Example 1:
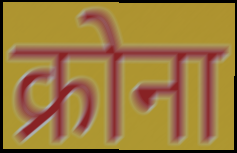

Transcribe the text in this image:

क्रोना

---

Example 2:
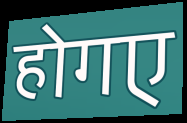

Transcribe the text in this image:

होगए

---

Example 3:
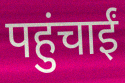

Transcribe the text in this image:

पहुंचाईं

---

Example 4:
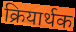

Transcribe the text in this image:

क्रियार्थक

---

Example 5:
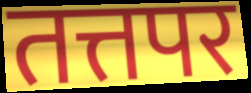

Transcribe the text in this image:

तत्तपर